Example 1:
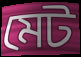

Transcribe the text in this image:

মেট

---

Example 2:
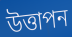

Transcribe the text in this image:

উত্তাপন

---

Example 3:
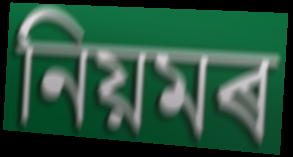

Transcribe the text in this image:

নিয়মৰ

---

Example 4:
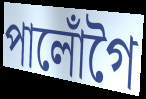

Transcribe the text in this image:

পালোঁগৈ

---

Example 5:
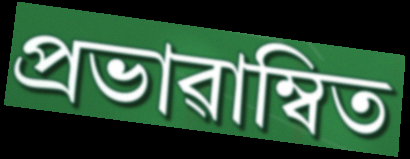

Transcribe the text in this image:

প্ৰভাৱাম্বিত